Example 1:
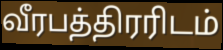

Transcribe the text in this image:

வீரபத்திரரிடம்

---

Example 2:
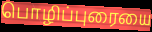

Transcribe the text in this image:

பொழிப்புரையை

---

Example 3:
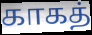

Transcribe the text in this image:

காகத்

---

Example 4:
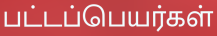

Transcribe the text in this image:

பட்டப்பெயர்கள்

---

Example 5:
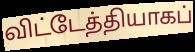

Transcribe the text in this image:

விட்டேத்தியாகப்